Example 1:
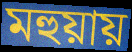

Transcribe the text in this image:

মহুয়ায়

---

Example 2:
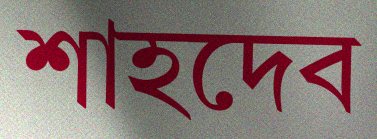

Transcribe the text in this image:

শাহদেব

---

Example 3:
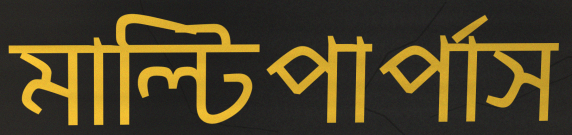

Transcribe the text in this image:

মাল্টিপার্পাস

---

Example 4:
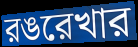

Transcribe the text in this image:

রঙরেখার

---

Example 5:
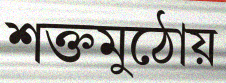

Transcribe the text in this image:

শক্তমুঠোয়